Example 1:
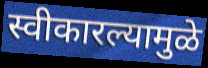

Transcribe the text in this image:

स्वीकारल्यामुळे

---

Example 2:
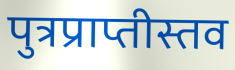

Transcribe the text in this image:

पुत्रप्राप्तीस्तव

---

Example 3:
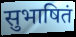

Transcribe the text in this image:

सुभाषितं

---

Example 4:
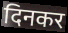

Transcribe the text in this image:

दिनकर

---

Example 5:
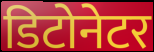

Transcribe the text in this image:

डिटोनेटर